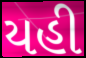
યહી